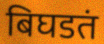
बिघडतं